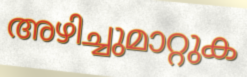
അഴിച്ചുമാറ്റുക